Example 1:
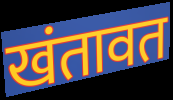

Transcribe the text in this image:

खंतावत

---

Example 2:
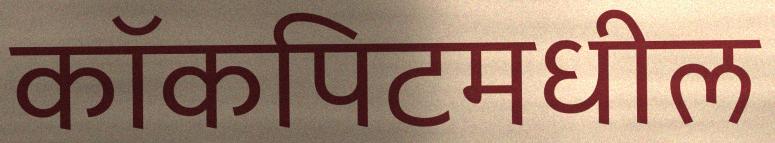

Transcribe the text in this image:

कॉकपिटमधील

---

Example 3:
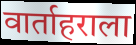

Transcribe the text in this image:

वार्ताहराला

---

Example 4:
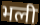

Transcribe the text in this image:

भली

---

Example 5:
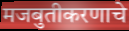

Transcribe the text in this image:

मजबुतीकरणाचे